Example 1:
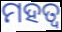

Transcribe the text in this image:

ମହତ୍ବ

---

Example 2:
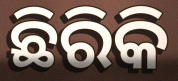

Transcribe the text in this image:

ଛିରିକି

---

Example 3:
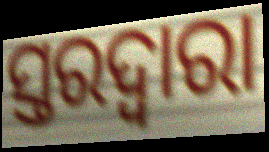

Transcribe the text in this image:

ସ୍ତରଦ୍ୱାରା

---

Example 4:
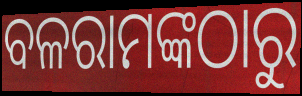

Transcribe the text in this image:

ବଳରାମଙ୍କଠାରୁ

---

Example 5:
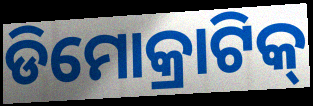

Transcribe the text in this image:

ଡିମୋକ୍ରାଟିକ୍